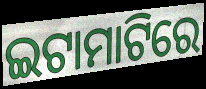
ଇଟାମାଟିରେ